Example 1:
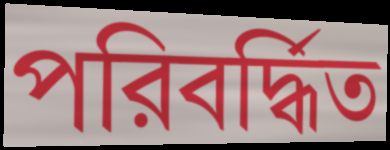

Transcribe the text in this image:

পরিবর্দ্ধিত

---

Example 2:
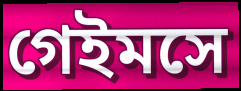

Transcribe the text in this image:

গেইমসে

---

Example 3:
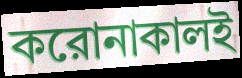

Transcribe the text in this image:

করোনাকালই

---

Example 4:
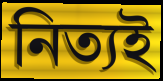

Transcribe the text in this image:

নিত্যই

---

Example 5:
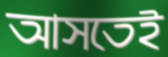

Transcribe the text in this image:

আসতেই